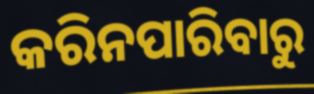
କରିନପାରିବାରୁ